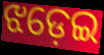
ଝଡ଼େଇ